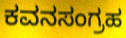
ಕವನಸಂಗ್ರಹ